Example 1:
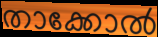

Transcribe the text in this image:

താക്കോൽ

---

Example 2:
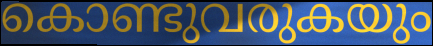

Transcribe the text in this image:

കൊണ്ടുവരുകയും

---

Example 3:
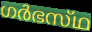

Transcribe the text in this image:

ഗർഭസ്‌ഥ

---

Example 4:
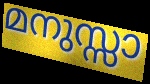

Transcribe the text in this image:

മനുസ്സാ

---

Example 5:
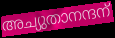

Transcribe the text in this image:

അച്യുതാനന്ദന്